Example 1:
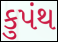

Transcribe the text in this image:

કુપંથ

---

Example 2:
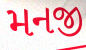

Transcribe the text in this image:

મનજી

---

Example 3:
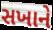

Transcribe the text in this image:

સખાને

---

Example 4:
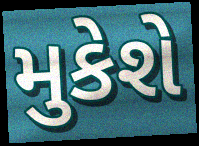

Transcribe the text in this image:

મુકેશે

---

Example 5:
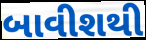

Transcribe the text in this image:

બાવીશથી